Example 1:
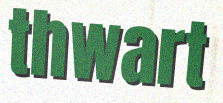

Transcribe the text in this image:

thwart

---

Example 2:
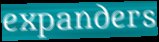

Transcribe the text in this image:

expanders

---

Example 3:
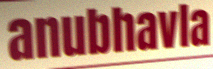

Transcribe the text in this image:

anubhavla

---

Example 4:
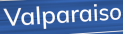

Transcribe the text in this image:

Valparaiso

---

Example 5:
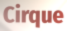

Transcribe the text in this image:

Cirque